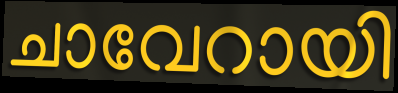
ചാവേറായി